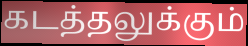
கடத்தலுக்கும்